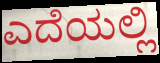
ಎದೆಯಲ್ಲಿ